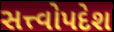
સત્ત્વોપદેશ